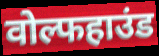
वोल्फहाउंड